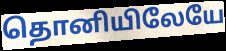
தொனியிலேயே